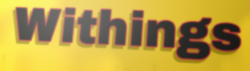
Withings